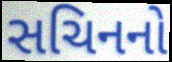
સચિનનો